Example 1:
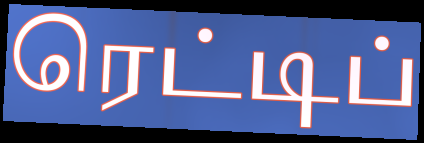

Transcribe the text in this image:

ரெட்டிப்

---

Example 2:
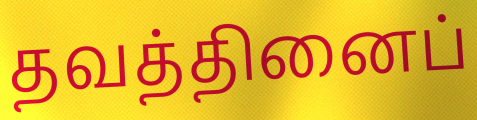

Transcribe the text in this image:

தவத்தினைப்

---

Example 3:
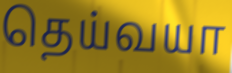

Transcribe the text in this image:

தெய்வயா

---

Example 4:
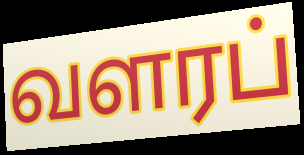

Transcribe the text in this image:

வளரப்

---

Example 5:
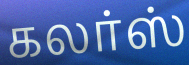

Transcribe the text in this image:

கலர்ஸ்